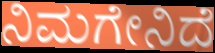
ನಿಮಗೇನಿದೆ